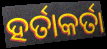
ହର୍ତାକର୍ତା